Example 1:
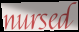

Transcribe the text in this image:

nursed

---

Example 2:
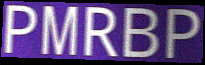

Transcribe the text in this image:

PMRBP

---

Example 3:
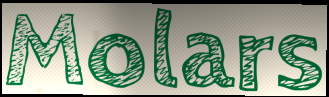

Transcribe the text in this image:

Molars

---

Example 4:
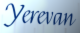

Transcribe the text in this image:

Yerevan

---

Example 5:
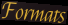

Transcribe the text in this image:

Formats